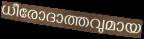
ധീരോദാത്തവുമായ